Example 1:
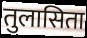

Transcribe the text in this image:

तुलासिता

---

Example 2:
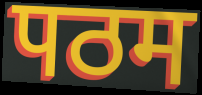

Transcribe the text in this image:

पठम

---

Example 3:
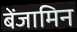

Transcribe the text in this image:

बेंजामिन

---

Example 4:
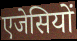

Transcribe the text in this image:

एजेसियों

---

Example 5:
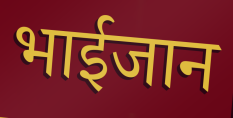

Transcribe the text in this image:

भाईजान